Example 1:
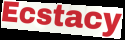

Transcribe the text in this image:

Ecstacy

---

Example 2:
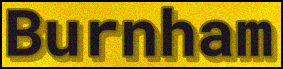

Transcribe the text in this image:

Burnham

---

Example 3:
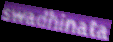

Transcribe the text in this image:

swadhinata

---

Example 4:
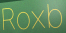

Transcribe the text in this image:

Roxb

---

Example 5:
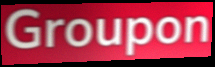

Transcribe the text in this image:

Groupon